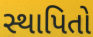
સ્થાપિતો